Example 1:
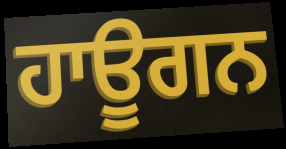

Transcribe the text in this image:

ਹਾਊਗਨ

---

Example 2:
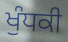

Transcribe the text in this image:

ਖੁੰਧਕੀ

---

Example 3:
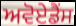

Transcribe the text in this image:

ਅਵੋਏਡੈਂਸ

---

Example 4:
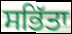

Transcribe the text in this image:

ਸਭਿੱਤਾ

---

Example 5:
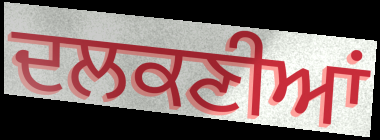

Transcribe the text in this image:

ਦਲਕਣੀਆਂ